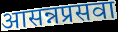
आसन्नप्रसवा